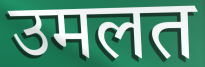
उमलत